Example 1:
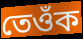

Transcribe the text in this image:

তেওঁক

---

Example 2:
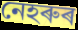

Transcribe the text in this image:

নেহৰুৰ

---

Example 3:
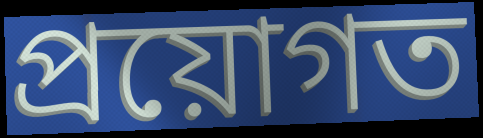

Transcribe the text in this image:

প্ৰয়োগত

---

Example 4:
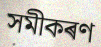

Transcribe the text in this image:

সমীকৰণ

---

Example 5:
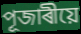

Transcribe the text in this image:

পূজাৰীয়ে